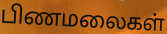
பிணமலைகள்